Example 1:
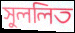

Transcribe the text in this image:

সুললিত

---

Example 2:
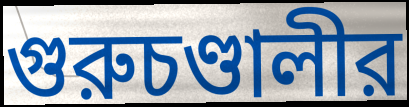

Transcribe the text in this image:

গুরুচণ্ডালীর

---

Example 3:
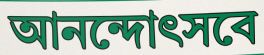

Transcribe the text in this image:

আনন্দোৎসবে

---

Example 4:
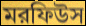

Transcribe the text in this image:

মরফিউস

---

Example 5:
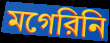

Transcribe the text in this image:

মগেরিনি